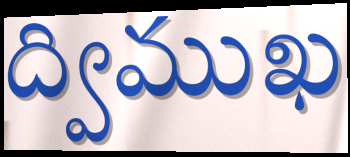
ద్విముఖ